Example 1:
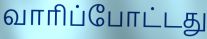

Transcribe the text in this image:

வாரிப்போட்டது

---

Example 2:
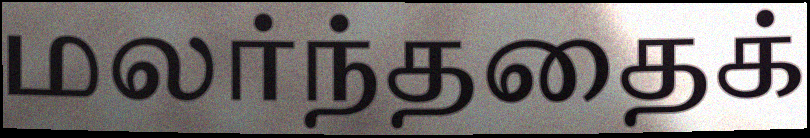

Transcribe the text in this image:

மலர்ந்ததைக்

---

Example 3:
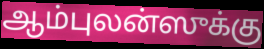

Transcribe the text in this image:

ஆம்புலன்ஸுக்கு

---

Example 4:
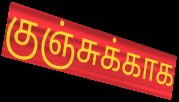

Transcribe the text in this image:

குஞ்சுக்காக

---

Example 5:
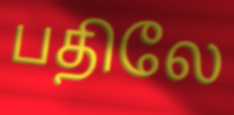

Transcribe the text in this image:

பதிலே